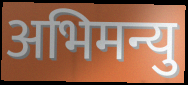
अभिमन्यु